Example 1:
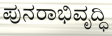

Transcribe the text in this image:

ಪುನರಾಭಿವೃದ್ಧಿ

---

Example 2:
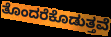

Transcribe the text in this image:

ತೊಂದರೆಕೊಡುತ್ತವೆ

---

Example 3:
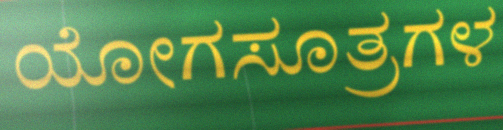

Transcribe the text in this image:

ಯೋಗಸೂತ್ರಗಳ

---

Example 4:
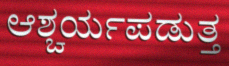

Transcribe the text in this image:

ಆಶ್ಚರ್ಯಪಡುತ್ತ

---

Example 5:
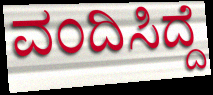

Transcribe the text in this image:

ವಂದಿಸಿದ್ದೆ